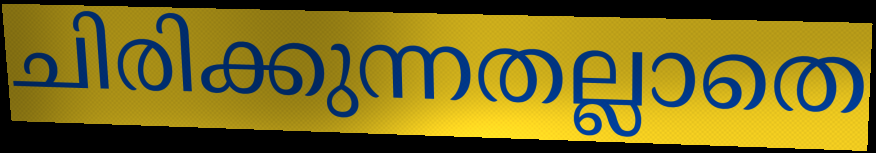
ചിരിക്കുന്നതല്ലാതെ